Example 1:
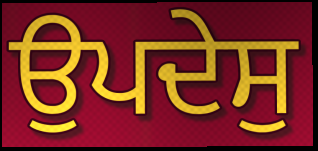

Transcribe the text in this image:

ਉਪਦੇਸੁ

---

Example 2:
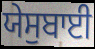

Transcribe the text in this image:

ਯੇਸੁਬਾਈ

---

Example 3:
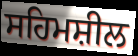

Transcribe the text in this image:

ਸਹਿਮਸ਼ੀਲ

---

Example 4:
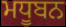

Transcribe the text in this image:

ਮਧੂਬਨ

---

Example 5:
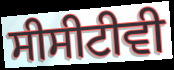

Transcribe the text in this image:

ਸੀਸੀਟੀਵੀ